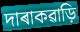
দাৰাকৱাড়ি